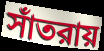
সাঁতরায়